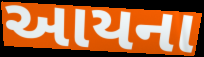
આયના